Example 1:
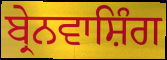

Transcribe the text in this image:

ਬ੍ਰੇਨਵਾਸ਼ਿੰਗ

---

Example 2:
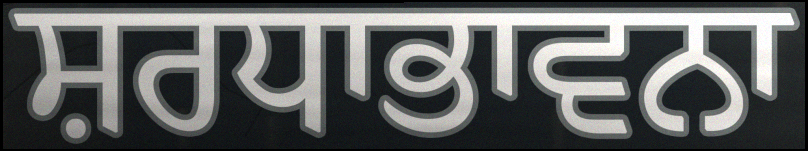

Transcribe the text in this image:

ਸ਼ਰਧਾਭਾਵਨਾ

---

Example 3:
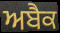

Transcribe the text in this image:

ਅਬੈਕ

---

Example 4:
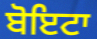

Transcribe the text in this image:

ਬੋਇਟਾ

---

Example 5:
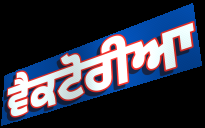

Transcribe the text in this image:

ਵੈਕਟੋਰੀਆ